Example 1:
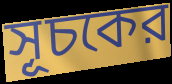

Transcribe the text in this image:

সূচকের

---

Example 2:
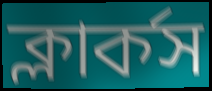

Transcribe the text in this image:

ক্লার্কস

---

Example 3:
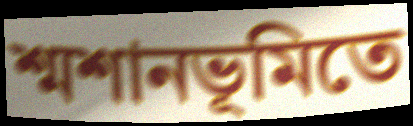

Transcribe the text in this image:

শ্মশানভূমিতে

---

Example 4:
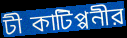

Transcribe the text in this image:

টীকাটিপ্পনীর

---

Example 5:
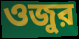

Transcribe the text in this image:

ওজুর